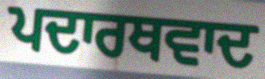
ਪਦਾਰਥਵਾਦ